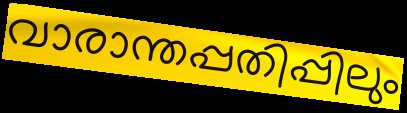
വാരാന്തപ്പതിപ്പിലും